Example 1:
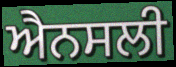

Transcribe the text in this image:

ਐਨਸਲੀ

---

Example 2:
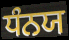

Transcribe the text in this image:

ਧੰਨਯ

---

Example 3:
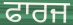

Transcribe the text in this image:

ਫਾਰਜ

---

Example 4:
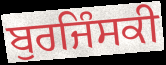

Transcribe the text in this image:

ਬੁਰਜਿੰਸਕੀ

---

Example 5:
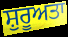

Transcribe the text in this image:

ਸ਼ੁਰੂਅਤਾ